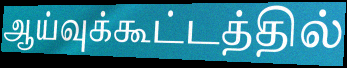
ஆய்வுக்கூட்டத்தில்